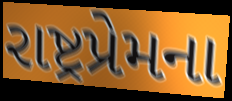
રાષ્ટ્રપ્રેમના